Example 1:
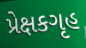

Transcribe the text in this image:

પ્રેક્ષકગૃહ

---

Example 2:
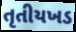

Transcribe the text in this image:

તૃતીયખડ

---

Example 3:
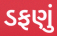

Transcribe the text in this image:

ડફણું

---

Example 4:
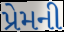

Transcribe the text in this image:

પ્રેમની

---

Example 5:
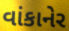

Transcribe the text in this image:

વાંકાનેર